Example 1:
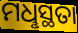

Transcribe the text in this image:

ମଧୢସ୍ଥତା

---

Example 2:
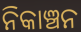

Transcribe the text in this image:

ନିକାଞ୍ଚନ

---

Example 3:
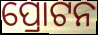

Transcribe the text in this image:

ପ୍ରୋଟନ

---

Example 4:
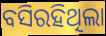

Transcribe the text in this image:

ବସିରହିଥିଲା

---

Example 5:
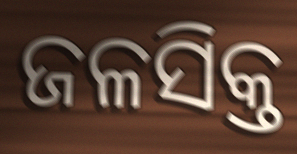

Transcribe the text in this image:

ଜଳସିକ୍ତ